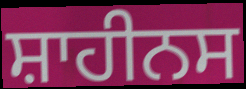
ਸ਼ਾਹੀਨਸ